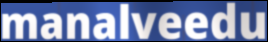
manalveedu